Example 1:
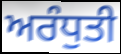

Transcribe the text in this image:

ਅਰੰਧੁਤੀ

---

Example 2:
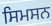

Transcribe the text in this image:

ਸਿਮਸਨ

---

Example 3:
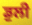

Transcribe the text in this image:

ਡੁਲੀ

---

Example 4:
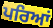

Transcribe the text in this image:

ਪਰਿਆਂ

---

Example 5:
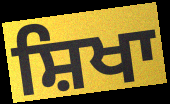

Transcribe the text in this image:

ਸ਼ਿਖਾ